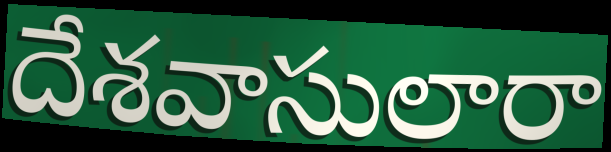
దేశవాసులారా